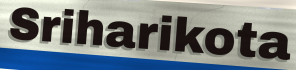
Sriharikota